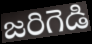
జరిగెడి